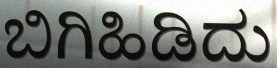
ಬಿಗಿಹಿಡಿದು